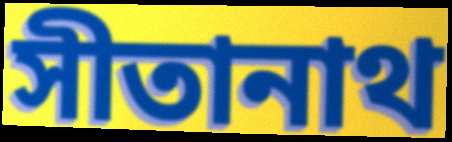
সীতানাথ